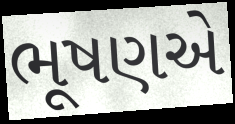
ભૂષણએ